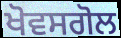
ਖੋਵਸਗੋਲ